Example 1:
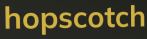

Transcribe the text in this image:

hopscotch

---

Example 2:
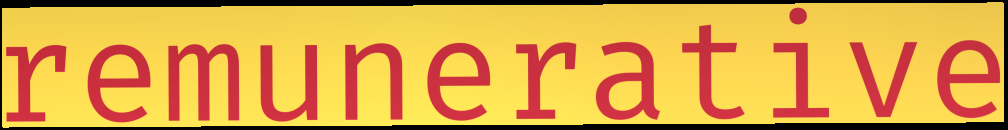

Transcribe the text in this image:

remunerative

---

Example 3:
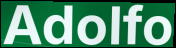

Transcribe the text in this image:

Adolfo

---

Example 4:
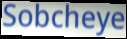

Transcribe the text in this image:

Sobcheye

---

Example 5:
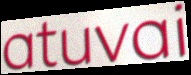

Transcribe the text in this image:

atuvai